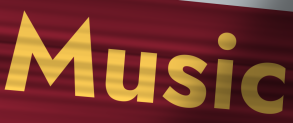
Music